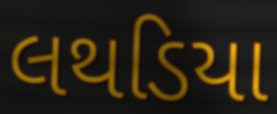
લથડિયા